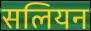
सलियन